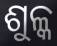
ଶୁଳ୍କ